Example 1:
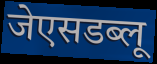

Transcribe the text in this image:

जेएसडब्‍लू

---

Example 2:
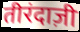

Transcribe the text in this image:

तीरंदाज़ी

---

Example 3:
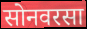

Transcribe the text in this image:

सोनवरसा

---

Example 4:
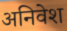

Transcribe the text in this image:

अनिवेश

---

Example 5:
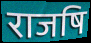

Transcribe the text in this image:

राजषि